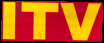
ITV